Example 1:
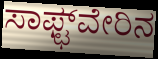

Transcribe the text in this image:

ಸಾಫ್ಟ್‌ವೇರಿನ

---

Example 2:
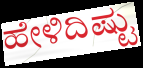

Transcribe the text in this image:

ಹೇಳಿದಿಷ್ಟು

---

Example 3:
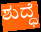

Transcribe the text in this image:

ಶುದ್ಧೆ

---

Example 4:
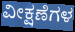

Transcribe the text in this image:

ವೀಕ್ಷಣೆಗಳ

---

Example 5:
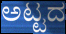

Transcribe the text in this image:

ಅಟ್ಟದ